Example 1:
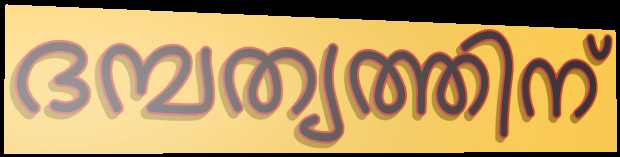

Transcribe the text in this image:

ദമ്പത്യത്തിന്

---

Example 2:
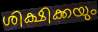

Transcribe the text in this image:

ശിക്ഷിക്കയും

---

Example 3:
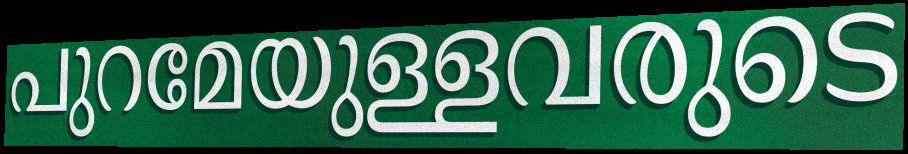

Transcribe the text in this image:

പുറമേയുള്ളവരുടെ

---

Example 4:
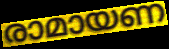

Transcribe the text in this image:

രാമായണ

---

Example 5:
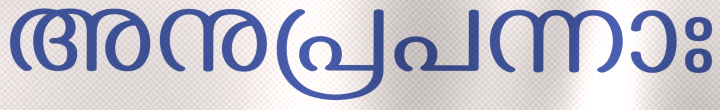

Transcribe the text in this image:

അനുപ്രപന്നാഃ